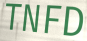
TNFD